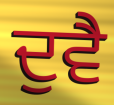
ਦੁਵੈ